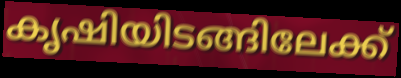
കൃഷിയിടങ്ങിലേക്ക്